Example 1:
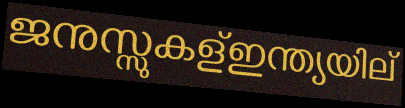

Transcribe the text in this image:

ജനുസ്സുകള്ഇന്ത്യയില്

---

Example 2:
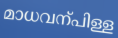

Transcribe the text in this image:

മാധവന്പിള്ള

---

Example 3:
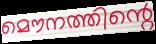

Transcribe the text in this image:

മൌനത്തിന്റെ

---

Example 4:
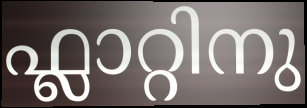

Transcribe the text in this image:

ഫ്ലാറ്റിനു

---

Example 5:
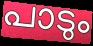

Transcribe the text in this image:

പാടും